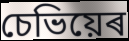
চেভিয়েৰ